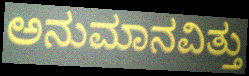
ಅನುಮಾನವಿತ್ತು